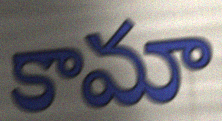
కామా